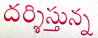
దర్శిస్తున్న